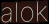
alok